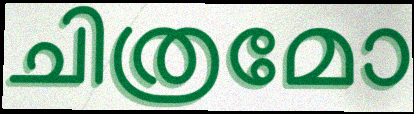
ചിത്രമോ